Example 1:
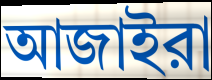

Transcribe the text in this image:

আজাইরা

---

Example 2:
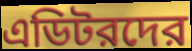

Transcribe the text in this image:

এডিটরদের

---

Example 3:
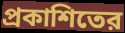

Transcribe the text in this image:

প্রকাশিতের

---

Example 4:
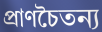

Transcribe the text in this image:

প্রাণচৈতন্য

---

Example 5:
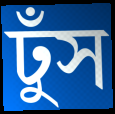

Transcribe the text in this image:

ঢুঁস